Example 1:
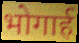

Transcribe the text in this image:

भोगार्ह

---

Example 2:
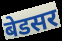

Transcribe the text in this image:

बेडसर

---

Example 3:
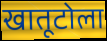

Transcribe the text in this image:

खातूटोला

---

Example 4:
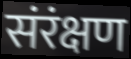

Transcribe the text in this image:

संरंक्षण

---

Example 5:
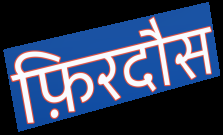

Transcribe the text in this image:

फ़िरदौस